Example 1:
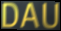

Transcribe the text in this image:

DAU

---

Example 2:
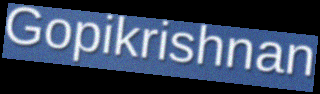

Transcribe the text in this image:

Gopikrishnan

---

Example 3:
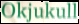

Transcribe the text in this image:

Okjukull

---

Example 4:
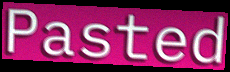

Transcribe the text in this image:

Pasted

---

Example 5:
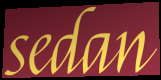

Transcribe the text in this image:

sedan